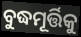
ବୁଦ୍ଧମୂର୍ତ୍ତିକୁ